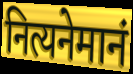
नित्यनेमानं